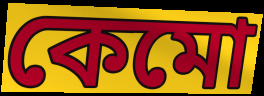
কেমো